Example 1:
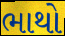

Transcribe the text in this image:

ભાથો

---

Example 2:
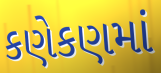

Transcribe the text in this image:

કણેકણમાં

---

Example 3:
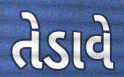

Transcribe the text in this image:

તેડાવે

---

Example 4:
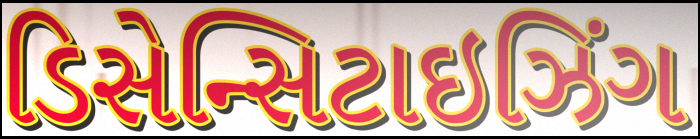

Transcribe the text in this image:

ડિસેન્સિટાઇઝિંગ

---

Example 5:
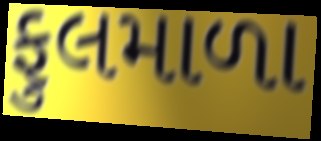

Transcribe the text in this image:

ફુલમાળા